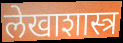
लेखाशास्त्र